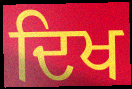
ਦਿਖ